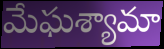
మేఘశ్యామా